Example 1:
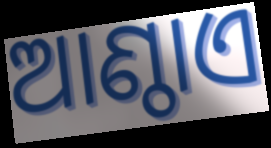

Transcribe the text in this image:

ଆଣ୍ଠାଏ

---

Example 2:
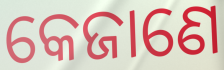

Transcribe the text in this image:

କେଜାଣେ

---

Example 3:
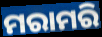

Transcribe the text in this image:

ମରାମରି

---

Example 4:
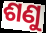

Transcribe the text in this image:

ଶଣୁ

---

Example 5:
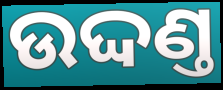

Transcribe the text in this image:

ଉଦ୍ଦଣ୍ତ